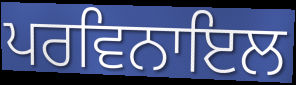
ਪਰਵਿਨਾਇਲ